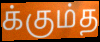
க்கும்த